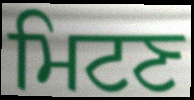
ਮਿਟਣ